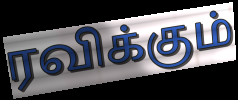
ரவிக்கும்